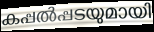
കപ്പൽപ്പടയുമായി